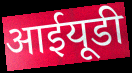
आईयूडी